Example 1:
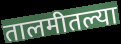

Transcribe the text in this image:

तालमीतल्या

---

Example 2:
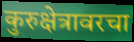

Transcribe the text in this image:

कुरुक्षेत्रावरचा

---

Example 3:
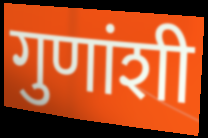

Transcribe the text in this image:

गुणांशी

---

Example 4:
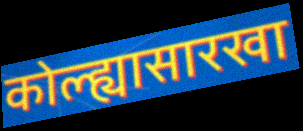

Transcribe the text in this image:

कोल्ह्यासारखा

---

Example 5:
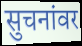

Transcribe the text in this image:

सुचनांवर